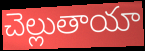
చెల్లుతాయా